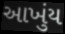
આખુંય